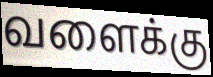
வளைக்கு